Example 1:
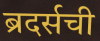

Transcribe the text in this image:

ब्रदर्सची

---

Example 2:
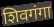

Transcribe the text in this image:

शिवगंगा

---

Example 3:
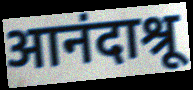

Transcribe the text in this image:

आनंदाश्रू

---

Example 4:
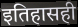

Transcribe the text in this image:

इतिहासही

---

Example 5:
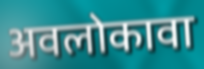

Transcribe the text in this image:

अवलोकावा